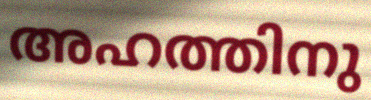
അഹത്തിനു